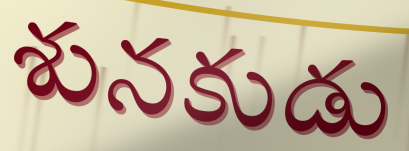
శునకుడు